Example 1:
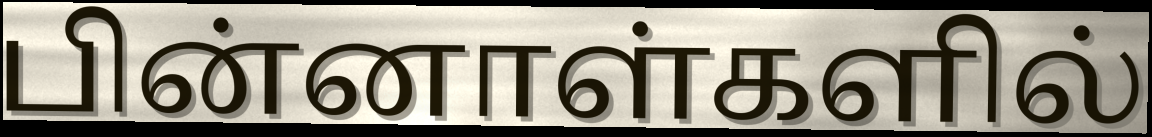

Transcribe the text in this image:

பின்னாள்களில்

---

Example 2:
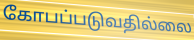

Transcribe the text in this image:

கோபப்படுவதில்லை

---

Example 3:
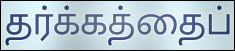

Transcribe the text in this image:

தர்க்கத்தைப்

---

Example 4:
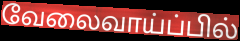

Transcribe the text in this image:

வேலைவாய்ப்பில்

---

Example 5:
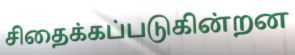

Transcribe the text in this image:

சிதைக்கப்படுகின்றன